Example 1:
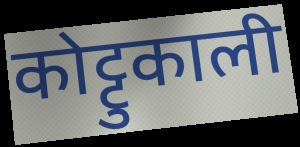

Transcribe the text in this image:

कोट्टुकाली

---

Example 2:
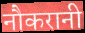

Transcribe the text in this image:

नौकरानी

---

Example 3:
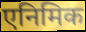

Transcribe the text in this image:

एनिमिक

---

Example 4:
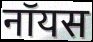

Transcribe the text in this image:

नॉयस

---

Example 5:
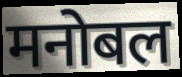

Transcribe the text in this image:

मनोबल